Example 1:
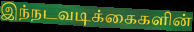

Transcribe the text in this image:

இந்நடவடிக்கைகளின்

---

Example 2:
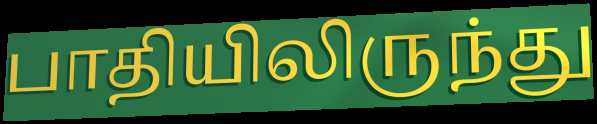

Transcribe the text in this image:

பாதியிலிருந்து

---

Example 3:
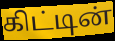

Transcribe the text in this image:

கிட்டின்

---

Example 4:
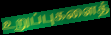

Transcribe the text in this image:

உறுப்புகளைத்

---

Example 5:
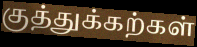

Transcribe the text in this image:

குத்துக்கற்கள்